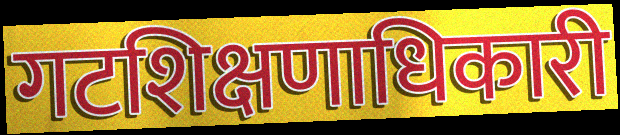
गटशिक्षणाधिकारी